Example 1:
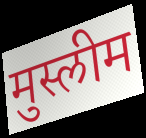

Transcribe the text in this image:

मुस्लीम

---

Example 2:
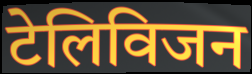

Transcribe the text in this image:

टेलिविजन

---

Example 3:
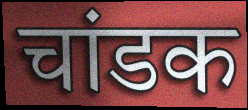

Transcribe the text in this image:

चांडक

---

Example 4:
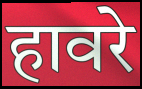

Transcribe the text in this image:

हावरे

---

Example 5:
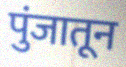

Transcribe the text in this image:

पुंजातून